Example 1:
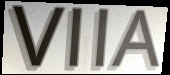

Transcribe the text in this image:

VIIA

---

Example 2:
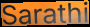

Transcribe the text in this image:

Sarathi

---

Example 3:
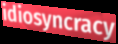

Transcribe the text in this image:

idiosyncracy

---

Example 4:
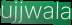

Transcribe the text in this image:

ujjwala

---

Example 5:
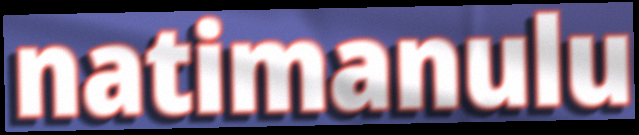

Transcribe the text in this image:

natimanulu